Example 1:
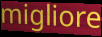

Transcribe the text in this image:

migliore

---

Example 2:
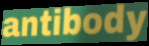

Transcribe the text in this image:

antibody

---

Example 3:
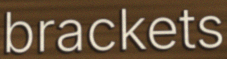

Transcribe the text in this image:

brackets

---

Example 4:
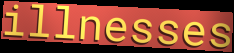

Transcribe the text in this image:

illnesses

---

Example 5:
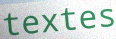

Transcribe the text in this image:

textes